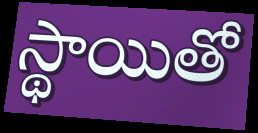
స్థాయితో